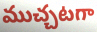
ముచ్చటగా